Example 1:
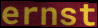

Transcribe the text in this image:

ernst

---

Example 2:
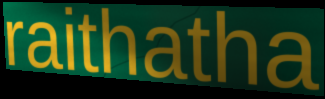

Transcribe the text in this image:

raithatha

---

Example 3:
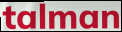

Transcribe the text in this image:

talman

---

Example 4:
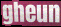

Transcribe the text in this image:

gheun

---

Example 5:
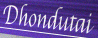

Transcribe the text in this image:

Dhondutai